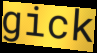
gick